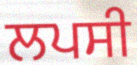
ਲਪਸੀ